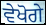
ਵੇਖੋਗੇ